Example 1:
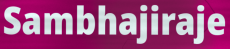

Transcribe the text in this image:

Sambhajiraje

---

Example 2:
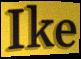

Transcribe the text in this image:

Ike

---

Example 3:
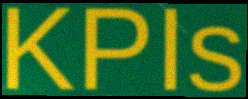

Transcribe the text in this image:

KPIs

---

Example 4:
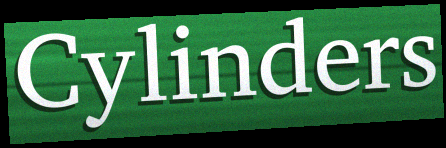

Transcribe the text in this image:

Cylinders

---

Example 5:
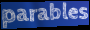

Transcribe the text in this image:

parables